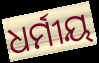
ଧର୍ମୀୟ